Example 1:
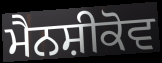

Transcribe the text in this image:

ਮੈਨਸ਼ੀਕੋਵ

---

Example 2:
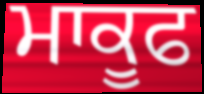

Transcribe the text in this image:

ਮਾਕੂਫ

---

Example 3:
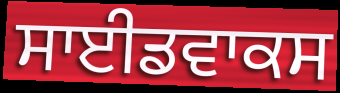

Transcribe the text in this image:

ਸਾਈਡਵਾਕਸ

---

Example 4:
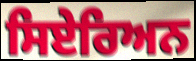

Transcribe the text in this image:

ਸਿਏਰਿਅਨ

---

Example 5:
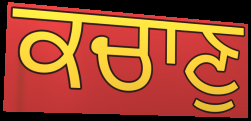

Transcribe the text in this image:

ਕਚਾਣੁ